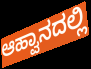
ಆಹ್ವಾನದಲ್ಲಿ